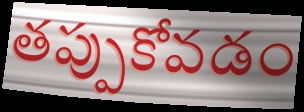
తప్పుకోవడం